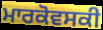
ਮਾਰਕੋਵਸਕੀ